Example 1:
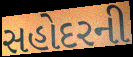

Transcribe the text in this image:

સહોદરની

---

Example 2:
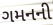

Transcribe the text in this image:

ગમનની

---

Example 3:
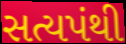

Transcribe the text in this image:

સત્યપંથી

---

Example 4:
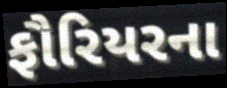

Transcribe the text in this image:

ફૌરિયરના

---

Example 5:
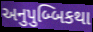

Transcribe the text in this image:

અનુપુબ્બિકથા